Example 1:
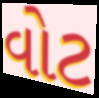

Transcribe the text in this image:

વોટ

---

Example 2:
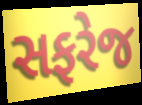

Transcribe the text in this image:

સફરેજ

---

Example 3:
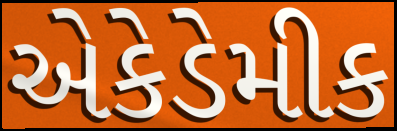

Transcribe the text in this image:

એકેડેમીક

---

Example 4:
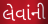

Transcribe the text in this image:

લેવાંની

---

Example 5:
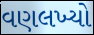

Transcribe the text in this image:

વણલખ્યો